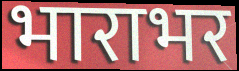
भाराभर